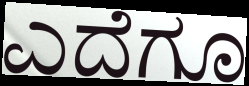
ಎದೆಗೂ